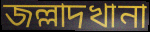
জল্লাদখানা